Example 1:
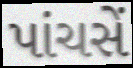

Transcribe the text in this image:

પાંચસેં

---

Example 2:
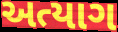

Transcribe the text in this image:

અત્યાગ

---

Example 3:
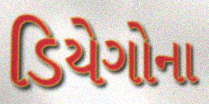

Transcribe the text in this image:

ડિયેગોના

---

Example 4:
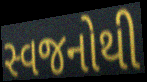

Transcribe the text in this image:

સ્વજનોથી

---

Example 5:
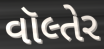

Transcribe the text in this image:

વૉલ્તેર